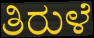
ತಿರುಳೆ